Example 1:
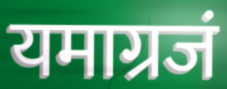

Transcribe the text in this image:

यमाग्रजं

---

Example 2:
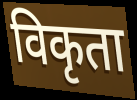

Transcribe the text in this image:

विकृता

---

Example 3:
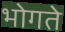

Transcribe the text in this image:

भोगते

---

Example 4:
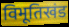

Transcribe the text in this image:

विभूतिखंड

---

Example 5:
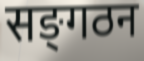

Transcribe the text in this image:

सङ्गठन